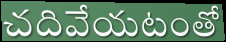
చదివేయటంతో